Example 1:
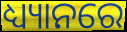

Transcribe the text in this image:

ଧ୍ୟ୍ୟାନରେ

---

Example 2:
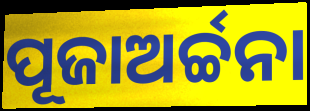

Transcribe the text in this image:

ପୂଜାଅର୍ଚ୍ଚନା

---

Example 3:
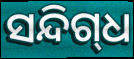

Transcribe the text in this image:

ସନ୍ଦିଗ୍‌ଧ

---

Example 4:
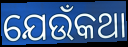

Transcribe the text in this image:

ଯେଉଁକଥା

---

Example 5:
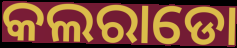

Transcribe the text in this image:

କଲରାଡୋ